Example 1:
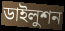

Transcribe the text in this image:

ডাইলুশন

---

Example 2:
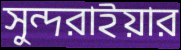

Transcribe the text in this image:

সুন্দরাইয়ার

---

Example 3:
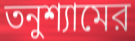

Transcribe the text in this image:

তনুশ্যামের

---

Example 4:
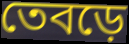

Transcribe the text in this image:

তেবড়ে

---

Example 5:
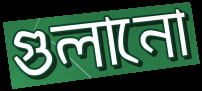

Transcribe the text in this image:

গুলানো